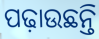
ପଢ଼ାଉଛନ୍ତି